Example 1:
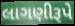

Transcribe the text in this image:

લાગણીરૂપે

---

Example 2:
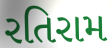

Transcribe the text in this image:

રતિરામ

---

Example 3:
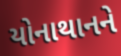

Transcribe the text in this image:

યોનાથાનને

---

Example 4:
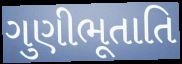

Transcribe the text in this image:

ગુણીભૂતાતિ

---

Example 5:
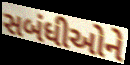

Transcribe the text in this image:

સબંધીઓને